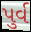
પુર્વ